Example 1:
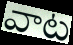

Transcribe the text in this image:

వాట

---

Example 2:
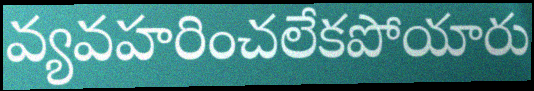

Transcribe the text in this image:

వ్యవహరించలేకపోయారు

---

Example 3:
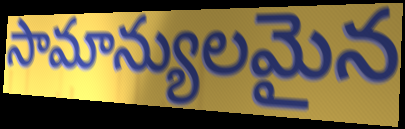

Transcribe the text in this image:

సామాన్యులమైన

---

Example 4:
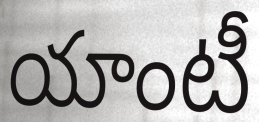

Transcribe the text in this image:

యాంటీ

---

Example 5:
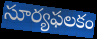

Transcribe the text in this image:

సూర్యఫలకం